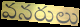
వనరులు